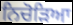
ਨਿਚੋੜਿਆ